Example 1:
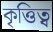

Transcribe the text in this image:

কৃত্তিত্ব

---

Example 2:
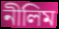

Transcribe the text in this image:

নীলিম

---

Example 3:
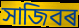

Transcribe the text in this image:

সাজিবৰ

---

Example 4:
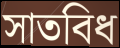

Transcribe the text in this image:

সাতবিধ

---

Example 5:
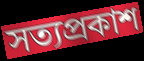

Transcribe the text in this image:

সত্যপ্ৰকাশ